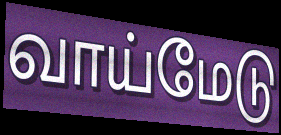
வாய்மேடு